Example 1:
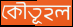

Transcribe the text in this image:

কৌতূহল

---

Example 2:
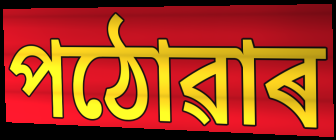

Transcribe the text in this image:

পঠোৱাৰ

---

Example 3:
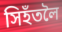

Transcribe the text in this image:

সিহঁতলৈ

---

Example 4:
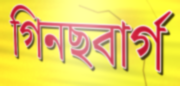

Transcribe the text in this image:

গিনছবাৰ্গ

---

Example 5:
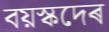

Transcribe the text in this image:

বয়স্কদেৰ